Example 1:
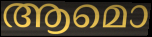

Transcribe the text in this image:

ആമൊ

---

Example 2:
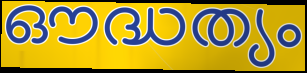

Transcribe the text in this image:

ഔദ്ധത്യം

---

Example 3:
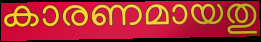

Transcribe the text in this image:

കാരണമായതു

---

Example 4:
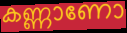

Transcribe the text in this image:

കണ്ണാണോ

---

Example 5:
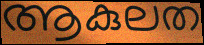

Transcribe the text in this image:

ആകുലത